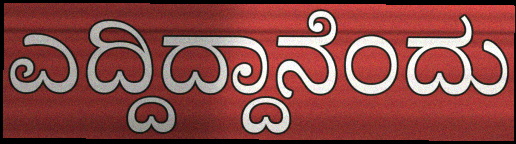
ಎದ್ದಿದ್ದಾನೆಂದು